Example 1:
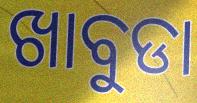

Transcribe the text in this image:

ଖାବୁଡା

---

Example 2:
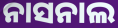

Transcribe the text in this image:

ନାସନାଲ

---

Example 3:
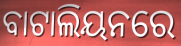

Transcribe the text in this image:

ବାଟାଲିୟନରେ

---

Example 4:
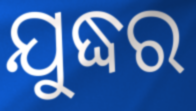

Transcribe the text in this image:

ଯୁଦ୍ଧର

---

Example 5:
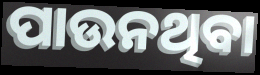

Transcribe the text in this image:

ପାଉନଥିବା